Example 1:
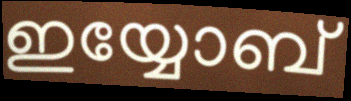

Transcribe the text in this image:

ഇയ്യോബ്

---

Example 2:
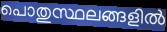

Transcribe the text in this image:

പൊതുസ്ഥലങ്ങളിൽ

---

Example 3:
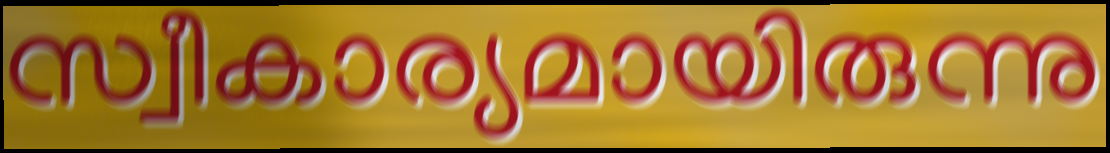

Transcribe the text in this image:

സ്വീകാര്യമായിരുന്നു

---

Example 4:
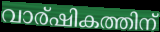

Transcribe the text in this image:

വാര്ഷികത്തിന്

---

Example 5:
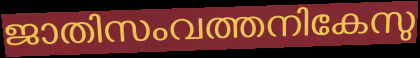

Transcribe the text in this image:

ജാതിസംവത്തനികേസു